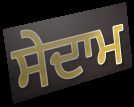
ਸੇਦਾਮ